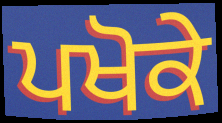
ਪਖੋਕੇ